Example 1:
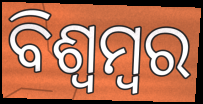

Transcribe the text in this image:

ବିଶ୍ଵମ୍ବର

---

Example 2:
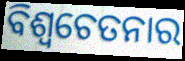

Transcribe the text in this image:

ବିଶ୍ଵଚେତନାର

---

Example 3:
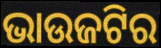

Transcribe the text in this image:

ଭାଉଜଟିର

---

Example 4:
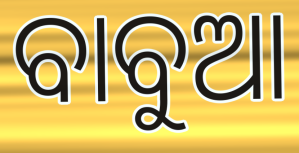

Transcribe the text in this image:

ବାବୁଆ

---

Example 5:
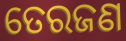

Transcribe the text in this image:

ତେରଜଣ